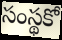
సంస్థకో